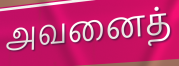
அவனைத்